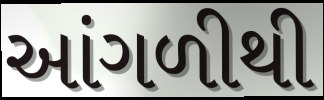
આંગળીથી